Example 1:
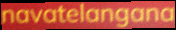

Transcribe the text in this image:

navatelangana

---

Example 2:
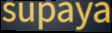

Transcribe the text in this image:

supaya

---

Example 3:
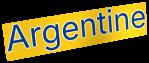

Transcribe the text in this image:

Argentine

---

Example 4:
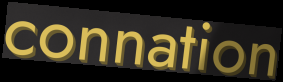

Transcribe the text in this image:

connation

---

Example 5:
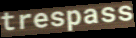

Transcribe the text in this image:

trespass